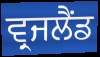
ਵ੍ਰਜਲੈਂਡ